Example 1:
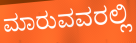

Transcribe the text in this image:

ಮಾರುವವರಲ್ಲಿ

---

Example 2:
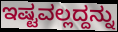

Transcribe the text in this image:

ಇಷ್ಟವಲ್ಲದ್ದನ್ನು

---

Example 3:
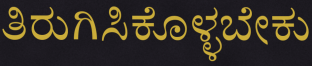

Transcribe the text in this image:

ತಿರುಗಿಸಿಕೊಳ್ಳಬೇಕು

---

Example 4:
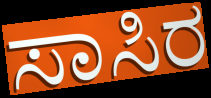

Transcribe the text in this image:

ಸಾಸಿರ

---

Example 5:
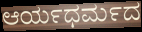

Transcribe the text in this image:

ಆರ್ಯಧರ್ಮದ